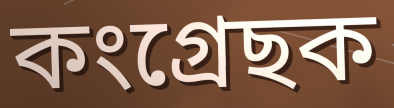
কংগ্ৰেছক